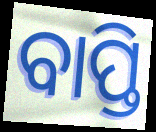
ବାପ୍ତି